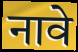
नावे